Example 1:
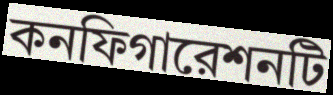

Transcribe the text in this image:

কনফিগারেশনটি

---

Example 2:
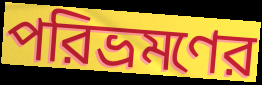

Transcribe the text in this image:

পরিভ্রমণের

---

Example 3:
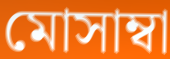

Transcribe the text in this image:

মোসাম্বা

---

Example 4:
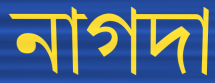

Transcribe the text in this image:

নাগদা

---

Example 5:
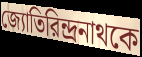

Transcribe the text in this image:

জ্যোতিরিন্দ্রনাথকে